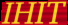
IHIT